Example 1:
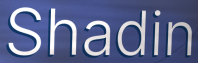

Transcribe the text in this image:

Shadin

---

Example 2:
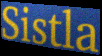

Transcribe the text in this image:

Sistla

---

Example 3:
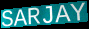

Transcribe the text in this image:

SARJAY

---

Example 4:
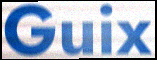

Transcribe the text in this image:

Guix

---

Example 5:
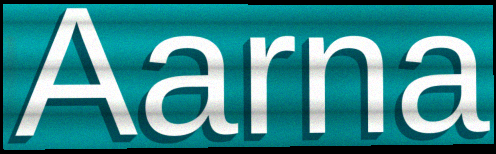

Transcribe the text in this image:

Aarna